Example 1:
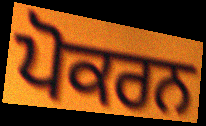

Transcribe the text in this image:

ਪੋਕਰਨ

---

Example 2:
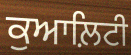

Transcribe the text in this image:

ਕੁਆਲ਼ਿਟੀ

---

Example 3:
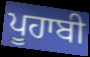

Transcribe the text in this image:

ਪੂਹਾਬੀ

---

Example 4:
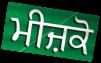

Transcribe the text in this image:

ਮੀਜ਼ਕੋ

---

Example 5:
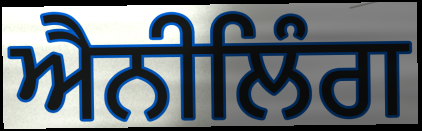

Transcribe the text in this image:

ਐਨੀਲਿੰਗ